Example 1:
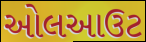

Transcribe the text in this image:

ઓલઆઉટ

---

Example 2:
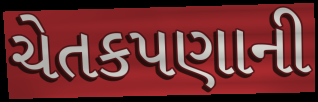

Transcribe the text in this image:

ચેતકપણાની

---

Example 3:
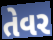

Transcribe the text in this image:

તેવર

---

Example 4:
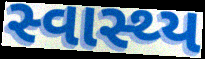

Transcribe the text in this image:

સ્વાસ્થ્ય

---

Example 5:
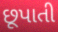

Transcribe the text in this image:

છૂપાતી